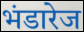
भंडारेज